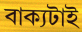
বাক্যটাই